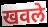
खवले